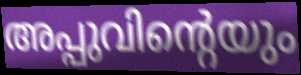
അപ്പുവിന്റെയും